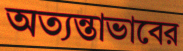
অত্যন্তাভাবের